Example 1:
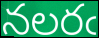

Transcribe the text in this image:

నలరఁ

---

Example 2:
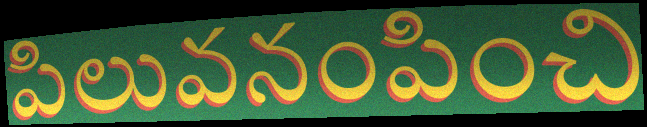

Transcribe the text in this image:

పిలువనంపించి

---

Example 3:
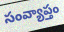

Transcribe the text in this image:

సంవ్యాప్తం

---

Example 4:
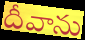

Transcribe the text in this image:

దీవాను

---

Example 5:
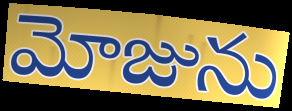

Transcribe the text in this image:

మోజును